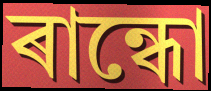
ৰান্ধো